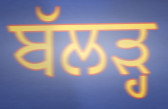
ਬੱਲੜ੍ਹ